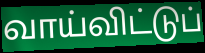
வாய்விட்டுப்